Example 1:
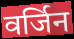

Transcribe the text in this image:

वर्जिन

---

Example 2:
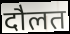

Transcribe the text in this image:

दौलत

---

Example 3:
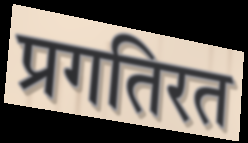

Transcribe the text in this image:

प्रगतिरत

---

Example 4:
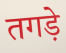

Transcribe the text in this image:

तगड़े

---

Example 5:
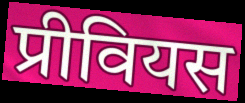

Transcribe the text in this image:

प्रीवियस